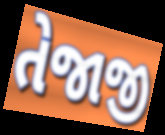
તેજાજી